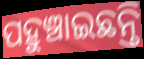
ପହୁଞ୍ଚାଇଛନ୍ତି